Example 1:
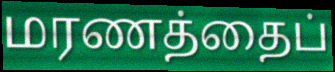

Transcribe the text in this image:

மரணத்தைப்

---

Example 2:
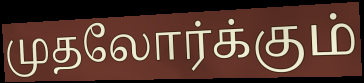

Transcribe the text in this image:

முதலோர்க்கும்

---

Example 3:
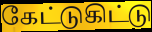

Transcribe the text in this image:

கேட்டுகிட்டு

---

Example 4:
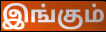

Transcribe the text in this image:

இங்கும்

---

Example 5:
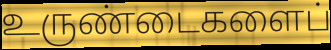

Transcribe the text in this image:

உருண்டைகளைப்